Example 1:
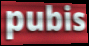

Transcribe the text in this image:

pubis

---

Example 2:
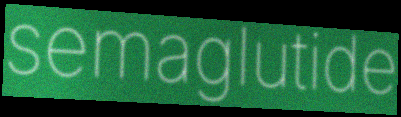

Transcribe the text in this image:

semaglutide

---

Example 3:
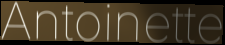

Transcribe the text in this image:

Antoinette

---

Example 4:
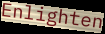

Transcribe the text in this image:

Enlighten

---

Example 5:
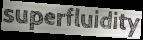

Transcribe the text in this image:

superfluidity